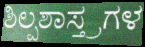
ಶಿಲ್ಪಶಾಸ್ತ್ರಗಳ